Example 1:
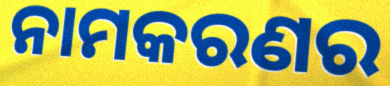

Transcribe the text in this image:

ନାମକରଣର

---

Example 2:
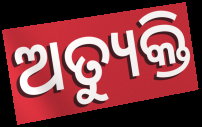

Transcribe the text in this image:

ଅତ୍ୟୁକ୍ତି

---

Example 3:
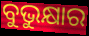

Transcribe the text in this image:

ବୁଭୁକ୍ଷାର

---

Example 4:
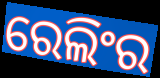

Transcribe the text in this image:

ରେଲିଂର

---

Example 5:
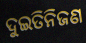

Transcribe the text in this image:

ଦୁଇତିନିଜଣ